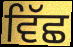
ਵਿੱਛ